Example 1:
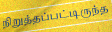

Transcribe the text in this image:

நிறுத்தப்பட்டிருந்த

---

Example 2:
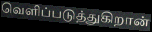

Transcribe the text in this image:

வெளிப்படுத்துகிறான்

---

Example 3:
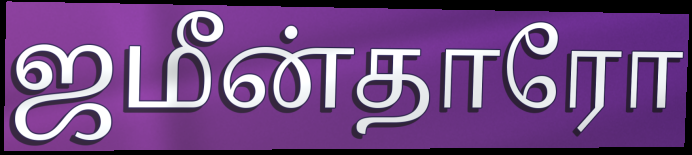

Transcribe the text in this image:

ஜமீன்தாரோ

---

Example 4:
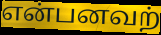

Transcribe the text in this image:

என்பனவற்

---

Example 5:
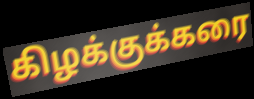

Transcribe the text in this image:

கிழக்குக்கரை